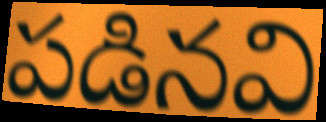
పడినవి